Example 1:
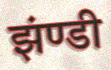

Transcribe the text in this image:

झंण्डी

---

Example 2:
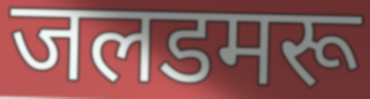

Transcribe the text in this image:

जलडमरू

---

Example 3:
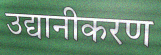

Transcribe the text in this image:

उद्यानीकरण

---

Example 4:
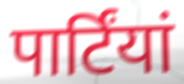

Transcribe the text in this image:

पार्टिंयां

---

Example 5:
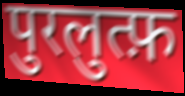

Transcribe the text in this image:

पुरलुत्फ़